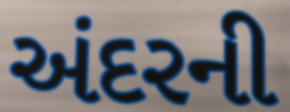
અંદરની